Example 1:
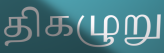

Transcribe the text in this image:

திகழுறு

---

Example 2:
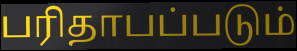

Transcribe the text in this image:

பரிதாபப்படும்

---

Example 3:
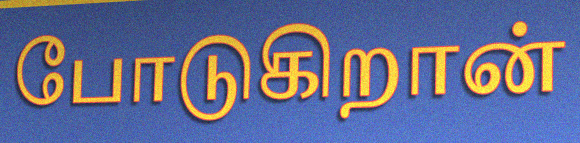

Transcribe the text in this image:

போடுகிறான்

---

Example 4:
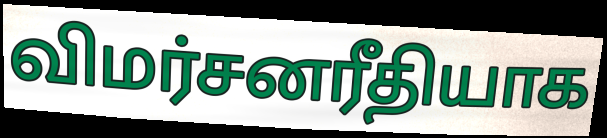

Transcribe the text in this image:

விமர்சனரீதியாக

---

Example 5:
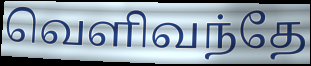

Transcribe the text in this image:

வெளிவந்தே